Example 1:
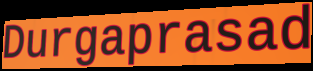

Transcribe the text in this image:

Durgaprasad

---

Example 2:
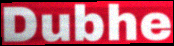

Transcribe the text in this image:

Dubhe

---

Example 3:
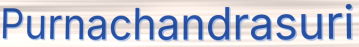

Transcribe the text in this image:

Purnachandrasuri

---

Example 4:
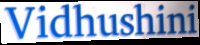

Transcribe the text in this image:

Vidhushini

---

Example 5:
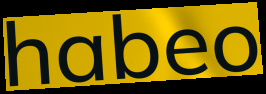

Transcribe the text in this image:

habeo